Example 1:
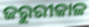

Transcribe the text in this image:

ଜରୁରୀକାଳ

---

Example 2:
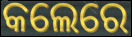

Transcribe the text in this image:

କଲେରେ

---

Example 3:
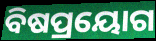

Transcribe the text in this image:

ବିଷପ୍ରୟୋଗ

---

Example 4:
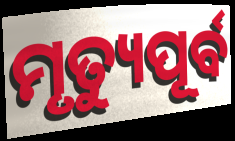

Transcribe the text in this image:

ମୃତ୍ୟୁପୂର୍ବ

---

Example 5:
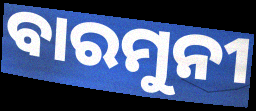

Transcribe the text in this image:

ବାରମୁନୀ